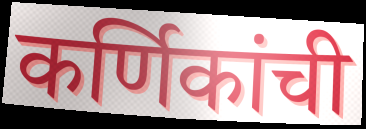
कर्णिकांची